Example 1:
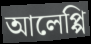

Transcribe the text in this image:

আলেপ্পি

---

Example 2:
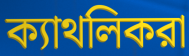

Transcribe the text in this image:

ক্যাথলিকরা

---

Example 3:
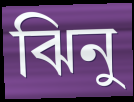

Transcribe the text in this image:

ঝিনু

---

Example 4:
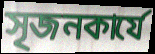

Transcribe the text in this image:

সৃজনকার্যে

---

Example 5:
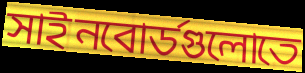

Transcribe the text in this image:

সাইনবোর্ডগুলোতে